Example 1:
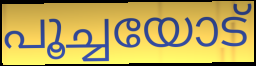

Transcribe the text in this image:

പൂച്ചയോട്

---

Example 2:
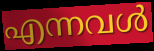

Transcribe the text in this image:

എന്നവൾ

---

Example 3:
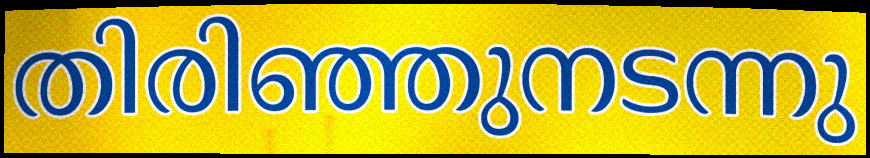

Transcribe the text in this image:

തിരിഞ്ഞുനടന്നു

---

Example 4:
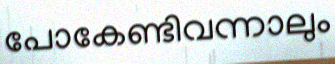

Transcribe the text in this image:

പോകേണ്ടിവന്നാലും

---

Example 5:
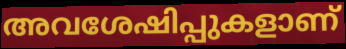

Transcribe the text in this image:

അവശേഷിപ്പുകളാണ്